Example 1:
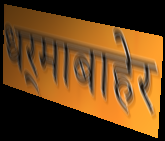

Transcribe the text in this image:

धर्माबाहेर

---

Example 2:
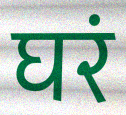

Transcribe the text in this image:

घरं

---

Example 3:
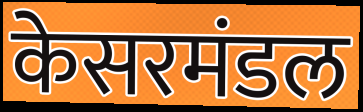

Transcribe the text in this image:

केसरमंडल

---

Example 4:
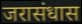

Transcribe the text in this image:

जरासंधास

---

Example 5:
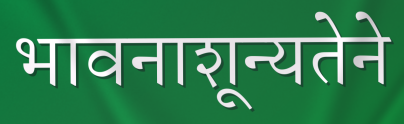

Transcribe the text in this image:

भावनाशून्यतेने